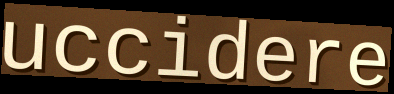
uccidere